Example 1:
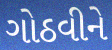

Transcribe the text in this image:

ગોઠવીને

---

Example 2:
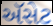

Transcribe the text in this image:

ઍસેટ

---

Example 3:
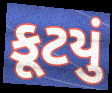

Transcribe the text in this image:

કૂટયું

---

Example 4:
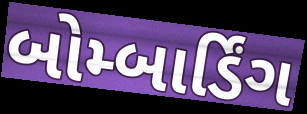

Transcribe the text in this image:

બોમ્બાર્ડિંગ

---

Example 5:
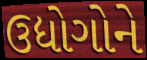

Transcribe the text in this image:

ઉદ્યોગોને